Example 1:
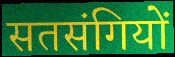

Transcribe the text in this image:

सतसंगियों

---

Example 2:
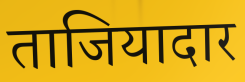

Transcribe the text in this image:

ताजियादार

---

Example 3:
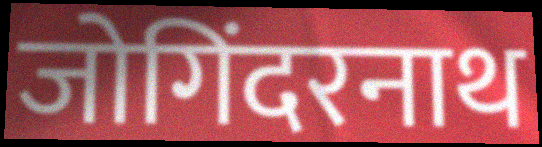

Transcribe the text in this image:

जोगिंदरनाथ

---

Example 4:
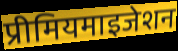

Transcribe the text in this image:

प्रीमियमाइजेशन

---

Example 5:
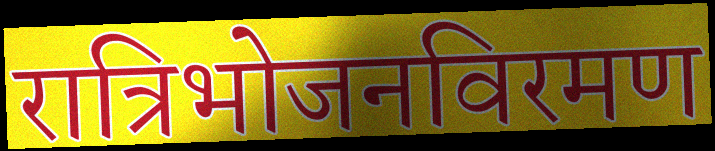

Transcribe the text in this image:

रात्रिभोजनविरमण